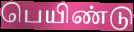
பெயிண்டு